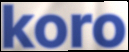
koro